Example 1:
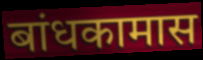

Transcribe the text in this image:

बांधकामास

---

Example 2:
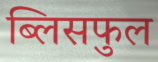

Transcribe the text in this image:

ब्लिसफुल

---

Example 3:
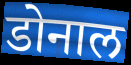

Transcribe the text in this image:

डोनाल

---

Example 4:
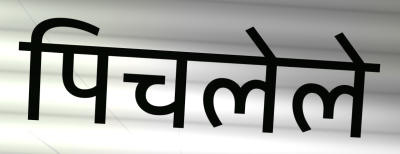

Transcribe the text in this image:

पिचलेले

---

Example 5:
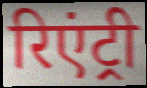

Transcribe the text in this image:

रिएंट्री